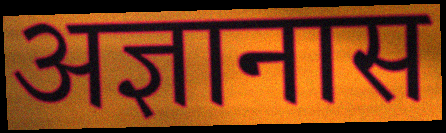
अज्ञानास